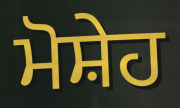
ਮੋਸ਼ੇਹ